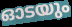
ഓടയും